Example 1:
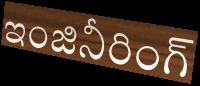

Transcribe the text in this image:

ఇంజినీరింగ్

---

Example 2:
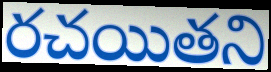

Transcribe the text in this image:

రచయితని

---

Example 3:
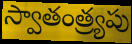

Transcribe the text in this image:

స్వాతంత్ర్యపు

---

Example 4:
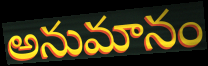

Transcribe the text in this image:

అనుమానం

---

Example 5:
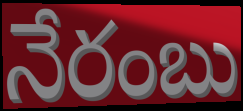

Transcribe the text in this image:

నేరంబు